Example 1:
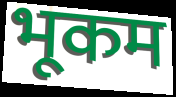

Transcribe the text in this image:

भूकम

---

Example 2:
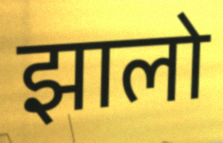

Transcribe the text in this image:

झालो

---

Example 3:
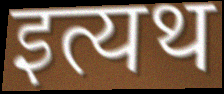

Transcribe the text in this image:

इत्यथ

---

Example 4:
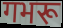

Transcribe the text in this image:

गभरू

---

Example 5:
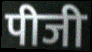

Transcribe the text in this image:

पीजी